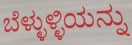
ಬೆಳ್ಳುಳ್ಳಿಯನ್ನು